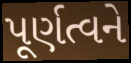
પૂર્ણત્વને